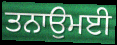
ਤਨਾਉਮਈ